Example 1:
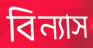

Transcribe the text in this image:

বিন্যাস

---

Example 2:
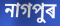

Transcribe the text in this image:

নাগপুৰ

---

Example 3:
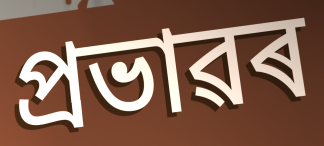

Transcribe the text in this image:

প্ৰভাৱৰ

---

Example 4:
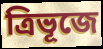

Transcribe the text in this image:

ত্ৰিভূজে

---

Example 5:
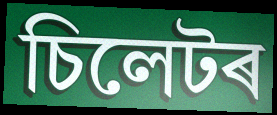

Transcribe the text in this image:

চিলেটৰ